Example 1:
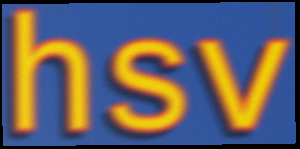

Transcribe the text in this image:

hsv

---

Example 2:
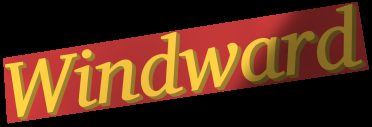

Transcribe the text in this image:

Windward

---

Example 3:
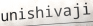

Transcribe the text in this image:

unishivaji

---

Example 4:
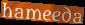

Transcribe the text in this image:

hameeda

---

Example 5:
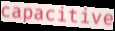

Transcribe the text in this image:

capacitive